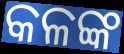
କଳଙ୍କ